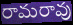
రామరావు